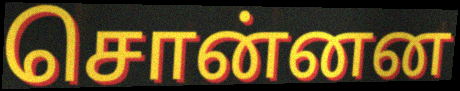
சொன்னன